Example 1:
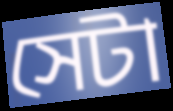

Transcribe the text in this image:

সেটা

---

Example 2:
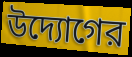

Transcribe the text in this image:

উদ্যোগের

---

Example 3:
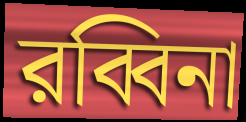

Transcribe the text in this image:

রব্বিনা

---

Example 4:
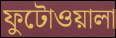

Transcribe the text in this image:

ফুটোওয়ালা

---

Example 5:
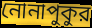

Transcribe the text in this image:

নোনাপুকুর